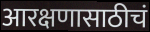
आरक्षणासाठीचं